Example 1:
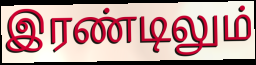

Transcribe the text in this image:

இரண்டிலும்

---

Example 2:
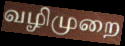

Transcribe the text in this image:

வழிமுறை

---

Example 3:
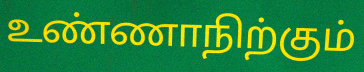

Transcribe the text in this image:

உண்ணாநிற்கும்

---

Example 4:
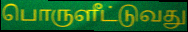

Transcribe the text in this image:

பொருளீட்டுவது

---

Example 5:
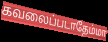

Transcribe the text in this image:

கவலைப்படாதேம்மா